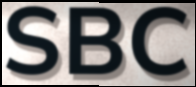
SBC